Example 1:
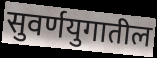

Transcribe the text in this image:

सुवर्णयुगातील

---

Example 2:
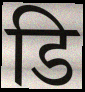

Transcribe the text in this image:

डि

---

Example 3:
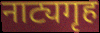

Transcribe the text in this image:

नाट्यगृह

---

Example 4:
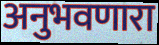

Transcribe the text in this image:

अनुभवणारा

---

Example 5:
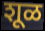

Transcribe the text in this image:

शूळ